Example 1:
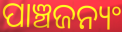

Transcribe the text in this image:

ପାଞ୍ଚଜନ୍ୟଂ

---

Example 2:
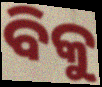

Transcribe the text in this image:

ବିକୁ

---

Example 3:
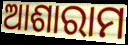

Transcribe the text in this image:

ଆଶାରାମ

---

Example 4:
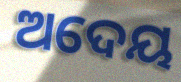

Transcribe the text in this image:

ଅଦେୟ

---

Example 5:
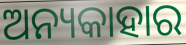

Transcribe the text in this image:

ଅନ୍ୟକାହାର